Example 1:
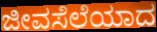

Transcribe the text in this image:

ಜೀವಸೆಲೆಯಾದ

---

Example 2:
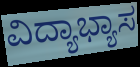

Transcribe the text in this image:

ವಿದ್ಯಾಭ್ಯಾಸ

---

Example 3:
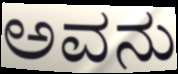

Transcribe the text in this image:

ಅವನು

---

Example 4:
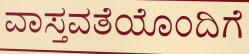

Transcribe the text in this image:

ವಾಸ್ತವತೆಯೊಂದಿಗೆ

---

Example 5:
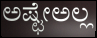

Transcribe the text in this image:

ಅಷ್ಟೇಅಲ್ಲ